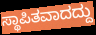
ಸ್ಥಾಪಿತವಾದದ್ದು